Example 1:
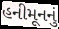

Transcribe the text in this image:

હનીમૂનનું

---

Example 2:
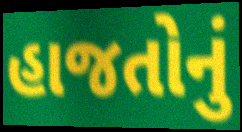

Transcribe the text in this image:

હાજતોનું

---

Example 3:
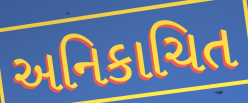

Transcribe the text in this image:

અનિકાચિત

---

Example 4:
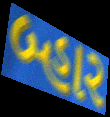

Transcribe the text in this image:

બ્હાર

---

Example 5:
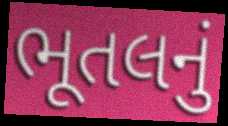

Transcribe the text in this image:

ભૂતલનું